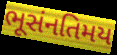
ભૂસંનતિમય